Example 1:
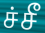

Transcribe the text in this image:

ச்சீ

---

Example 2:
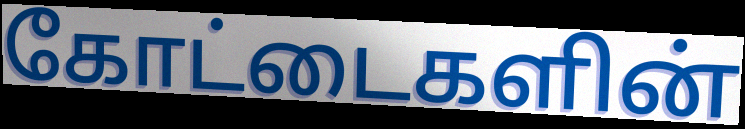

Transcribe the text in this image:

கோட்டைகளின்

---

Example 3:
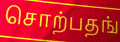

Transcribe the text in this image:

சொற்பதங்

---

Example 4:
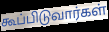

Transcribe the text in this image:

கூப்பிடுவார்கள்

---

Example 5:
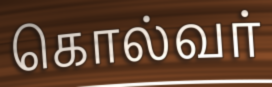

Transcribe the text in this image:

கொல்வர்